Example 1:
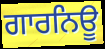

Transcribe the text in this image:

ਗਾਰਨਿਊ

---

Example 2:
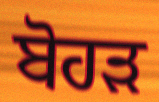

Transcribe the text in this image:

ਬੋਹੜ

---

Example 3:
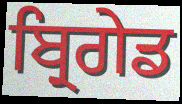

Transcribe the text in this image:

ਬ੍ਰਿਗੇਡ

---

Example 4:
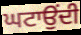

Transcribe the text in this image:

ਘਟਾਉਂਦੀ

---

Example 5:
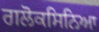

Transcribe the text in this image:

ਗਲੋਕਸਿਨਿਆ